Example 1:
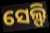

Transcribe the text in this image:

ସେଲ୍ଫି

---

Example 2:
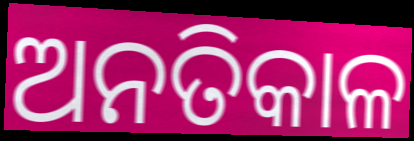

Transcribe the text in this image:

ଅନତିକାଳ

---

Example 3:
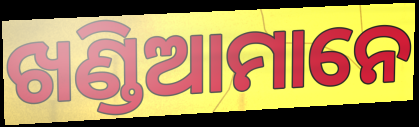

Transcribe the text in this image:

ଖଣ୍ଡିଆମାନେ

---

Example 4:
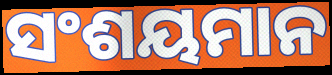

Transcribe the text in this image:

ସଂଶୟମାନ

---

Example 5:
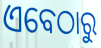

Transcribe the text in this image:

ଏବେଠାରୁ